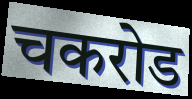
चकरोड